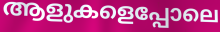
ആളുകളെപ്പോലെ